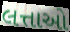
લત્તાઓ